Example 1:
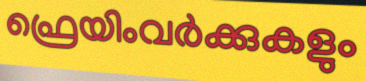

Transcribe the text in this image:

ഫ്രെയിംവർക്കുകളും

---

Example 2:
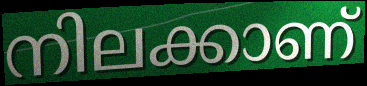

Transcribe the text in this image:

നിലക്കാണ്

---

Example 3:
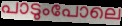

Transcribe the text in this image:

പാടുംപോലെ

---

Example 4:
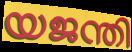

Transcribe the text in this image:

യജന്തി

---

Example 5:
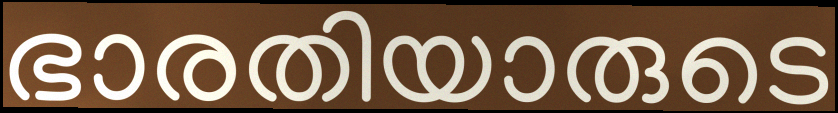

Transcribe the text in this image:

ഭാരതിയാരുടെ